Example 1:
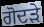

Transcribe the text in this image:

ਗੋਦੜੇ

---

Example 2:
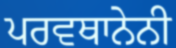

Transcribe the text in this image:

ਪਰਵਥਾਨੇਨੀ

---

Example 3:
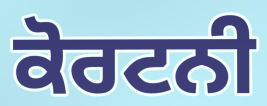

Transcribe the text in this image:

ਕੋਰਟਨੀ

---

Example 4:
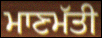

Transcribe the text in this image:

ਮਾਣਮੱਤੀ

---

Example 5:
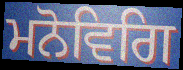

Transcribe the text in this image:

ਮਨੋਵਿਗਿ